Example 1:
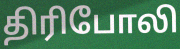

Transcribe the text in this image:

திரிபோலி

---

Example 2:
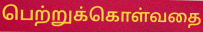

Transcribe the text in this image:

பெற்றுக்கொள்வதை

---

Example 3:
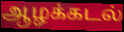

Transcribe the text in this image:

ஆழக்கடல்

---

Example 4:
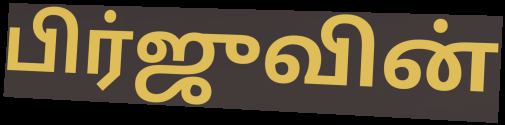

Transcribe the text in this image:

பிர்ஜுவின்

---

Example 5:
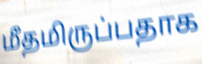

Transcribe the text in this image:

மீதமிருப்பதாக